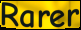
Rarer